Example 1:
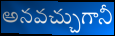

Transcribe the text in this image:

అనవచ్చుగానీ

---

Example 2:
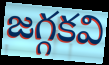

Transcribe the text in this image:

జగ్గకవి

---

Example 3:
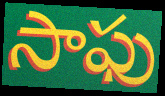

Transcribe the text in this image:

సాఫు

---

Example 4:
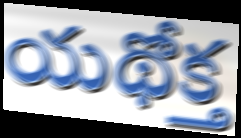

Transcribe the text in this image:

యథోక్త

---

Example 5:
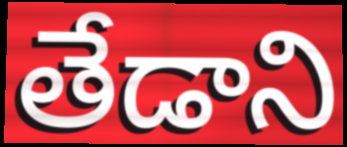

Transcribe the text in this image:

తేడాని